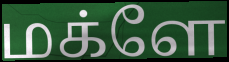
மக்ளே